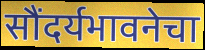
सौंदर्यभावनेचा